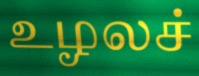
உழலச்